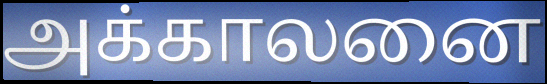
அக்காலனை